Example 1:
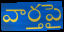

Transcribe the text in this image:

వార్తపై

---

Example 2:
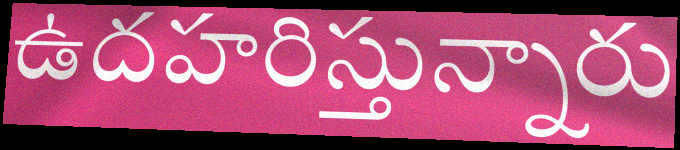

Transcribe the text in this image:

ఉదహరిస్తున్నారు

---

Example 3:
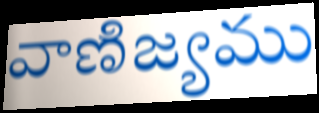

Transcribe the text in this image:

వాణిజ్యము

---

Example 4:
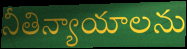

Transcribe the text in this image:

నీతిన్యాయాలను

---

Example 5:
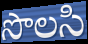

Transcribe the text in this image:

సొలసి